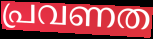
പ്രവണത